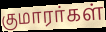
குமாரர்கள்